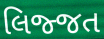
લિજ્જત